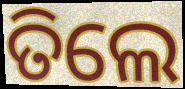
ତିଲେ